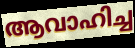
ആവാഹിച്ച